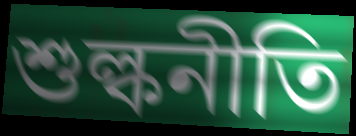
শুল্কনীতি